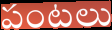
పంటలు